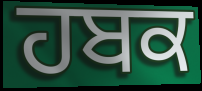
ਹਬਕ